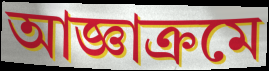
আজ্ঞাক্রমে